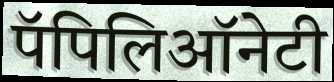
पॅपिलिऑनेटी